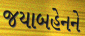
જયાબહેનને